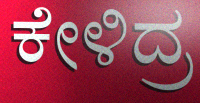
ಕೇಳಿದ್ರ